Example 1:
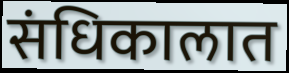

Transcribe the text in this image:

संधिकालात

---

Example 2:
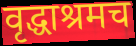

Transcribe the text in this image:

वृद्धाश्रमच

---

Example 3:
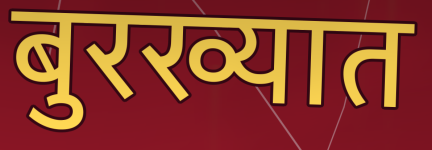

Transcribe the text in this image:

बुरख्यात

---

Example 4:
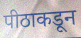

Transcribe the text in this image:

पीठाकडून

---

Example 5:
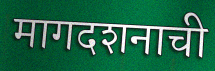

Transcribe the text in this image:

मागदशनाची